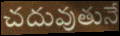
చదువుతునే